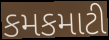
કમકમાટી